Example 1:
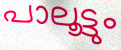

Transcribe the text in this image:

പാലൂട്ടും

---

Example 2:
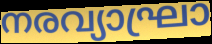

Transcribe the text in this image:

നരവ്യാഘ്രാ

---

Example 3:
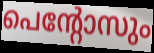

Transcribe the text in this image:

പെന്റോസും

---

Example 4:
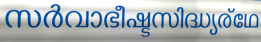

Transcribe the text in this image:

സർവാഭീഷ്ടസിദ്ധ്യര്ഥേ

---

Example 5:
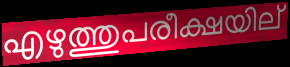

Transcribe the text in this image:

എഴുത്തുപരീക്ഷയില്